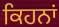
ਕਿਹਨਾਂ